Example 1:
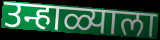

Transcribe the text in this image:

उन्हाळ्याला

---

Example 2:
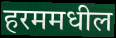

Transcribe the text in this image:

हरममधील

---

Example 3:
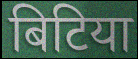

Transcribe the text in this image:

बिटिया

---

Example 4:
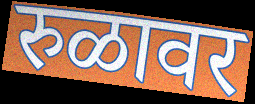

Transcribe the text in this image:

रुळावर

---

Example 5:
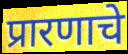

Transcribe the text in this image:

प्रारणाचे